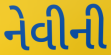
નેવીની